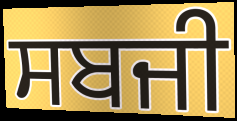
ਸਬਜੀ